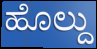
ಹೊಲ್ದು